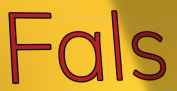
Fals